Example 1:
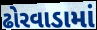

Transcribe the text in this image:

ઢોરવાડામાં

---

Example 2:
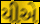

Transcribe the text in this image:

યીએ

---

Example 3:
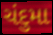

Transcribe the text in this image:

ચંદુમા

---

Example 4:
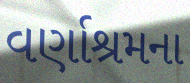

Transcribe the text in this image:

વર્ણાશ્રમના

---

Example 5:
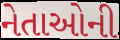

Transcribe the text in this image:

નેતાઓની